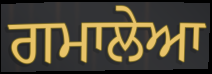
ਗਮਾਲੇਆ